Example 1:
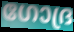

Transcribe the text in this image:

ഗോദ്ര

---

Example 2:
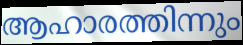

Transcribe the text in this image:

ആഹാരത്തിന്നും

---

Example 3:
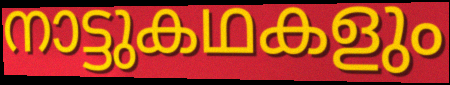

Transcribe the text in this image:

നാട്ടുകഥകളും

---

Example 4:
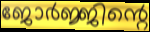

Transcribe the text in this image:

ജോർജ്ജിന്റെ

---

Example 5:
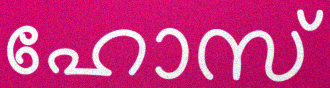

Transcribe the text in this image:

ഹോസ്